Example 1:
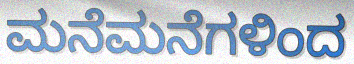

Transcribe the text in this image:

ಮನೆಮನೆಗಳಿಂದ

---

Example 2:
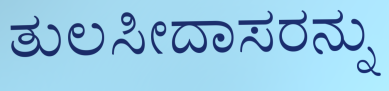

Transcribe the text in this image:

ತುಲಸೀದಾಸರನ್ನು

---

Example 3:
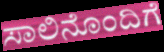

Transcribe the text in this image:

ಸಾಲಿನೊಂದಿಗೆ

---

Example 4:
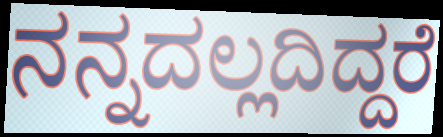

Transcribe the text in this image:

ನನ್ನದಲ್ಲದಿದ್ದರೆ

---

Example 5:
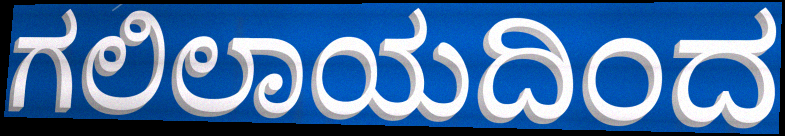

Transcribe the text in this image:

ಗಲಿಲಾಯದಿಂದ